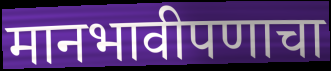
मानभावीपणाचा